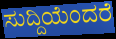
ಸುದ್ದಿಯೆಂದರೆ